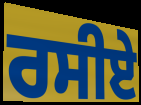
ਰਸੀਏ